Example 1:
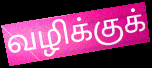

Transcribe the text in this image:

வழிக்குக்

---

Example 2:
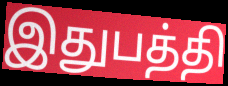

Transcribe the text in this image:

இதுபத்தி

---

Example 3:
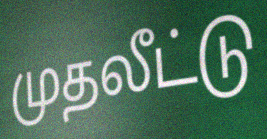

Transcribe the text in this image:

முதலீட்டு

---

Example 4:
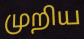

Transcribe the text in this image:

முறிய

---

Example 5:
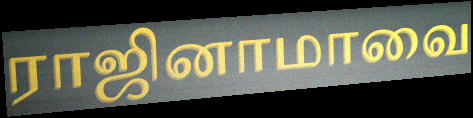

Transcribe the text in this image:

ராஜினாமாவை